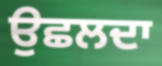
ਉਛਲਦਾ